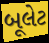
બૂલેટ